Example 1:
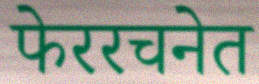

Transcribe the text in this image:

फेररचनेत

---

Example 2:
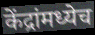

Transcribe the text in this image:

केंद्रांमध्येच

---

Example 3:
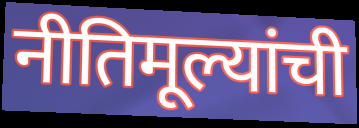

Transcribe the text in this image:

नीतिमूल्यांची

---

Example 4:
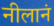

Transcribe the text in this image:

नीलानं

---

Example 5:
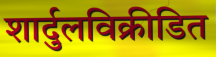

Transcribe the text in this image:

शार्दुलविक्रीडित